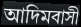
আদিমবাসী